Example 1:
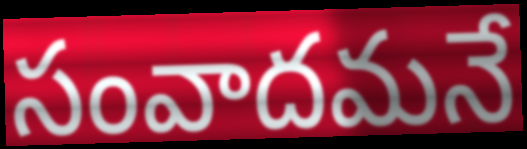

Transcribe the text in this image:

సంవాదమనే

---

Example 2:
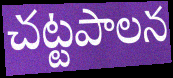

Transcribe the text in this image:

చట్టపాలన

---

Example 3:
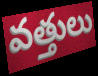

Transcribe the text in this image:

వత్తులు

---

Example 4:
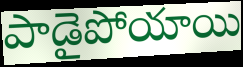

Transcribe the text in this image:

పాడైపోయాయి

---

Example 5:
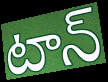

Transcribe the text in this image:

టాన్